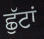
ਛੁੱਟਾਂ